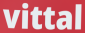
vittal